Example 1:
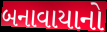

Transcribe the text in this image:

બનાવાયાનો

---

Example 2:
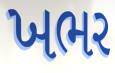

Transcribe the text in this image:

ખભર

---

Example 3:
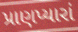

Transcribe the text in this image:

પ્રાણપ્યારાં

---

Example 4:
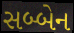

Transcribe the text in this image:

સબ્બેન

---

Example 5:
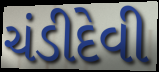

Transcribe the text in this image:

ચંડીદેવી